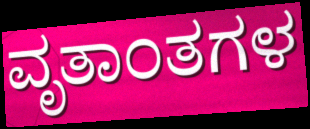
ವೃತಾಂತಗಳ